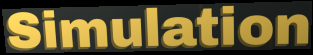
Simulation